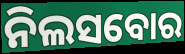
ନିଲସବୋର